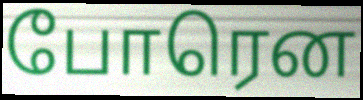
போரென